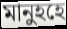
মানুহহে